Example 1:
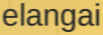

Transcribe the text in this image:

elangai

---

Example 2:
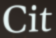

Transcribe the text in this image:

Cit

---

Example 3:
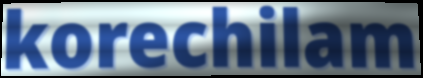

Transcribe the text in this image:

korechilam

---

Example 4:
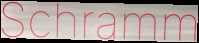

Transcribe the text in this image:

Schramm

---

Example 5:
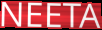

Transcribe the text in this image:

NEETA